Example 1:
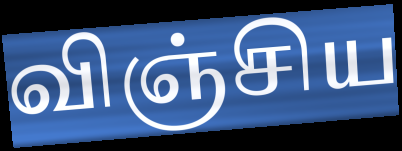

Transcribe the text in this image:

விஞ்சிய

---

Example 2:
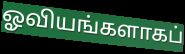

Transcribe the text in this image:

ஓவியங்களாகப்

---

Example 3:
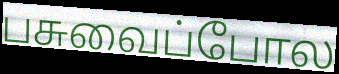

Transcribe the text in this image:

பசுவைப்போல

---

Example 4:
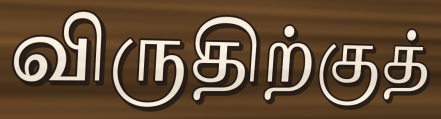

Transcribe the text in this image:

விருதிற்குத்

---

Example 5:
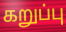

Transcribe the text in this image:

கறுப்பு